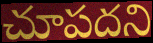
చూపదని